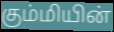
கும்மியின்